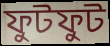
ফুটফুট